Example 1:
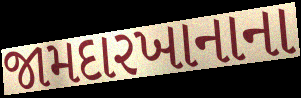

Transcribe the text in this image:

જામદારખાનાના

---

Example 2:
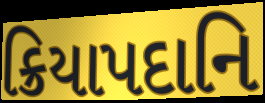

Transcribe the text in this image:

ક્રિયાપદાનિ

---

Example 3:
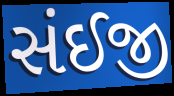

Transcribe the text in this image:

સંઈજી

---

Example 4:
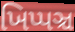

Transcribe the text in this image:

ખિપ્પઞ્ચ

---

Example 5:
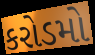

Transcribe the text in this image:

કરોડમો